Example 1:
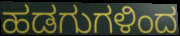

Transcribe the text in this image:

ಹಡಗುಗಳಿಂದ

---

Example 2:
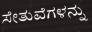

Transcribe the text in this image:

ಸೇತುವೆಗಳನ್ನು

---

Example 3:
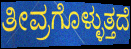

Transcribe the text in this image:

ತೀವ್ರಗೊಳ್ಳುತ್ತದೆ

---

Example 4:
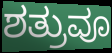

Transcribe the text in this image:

ಶತ್ರುವೂ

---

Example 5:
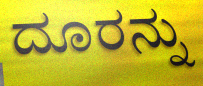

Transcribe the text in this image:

ದೂರನ್ನು